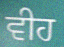
ਵੀਹ